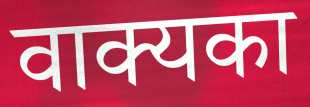
वाक्यका